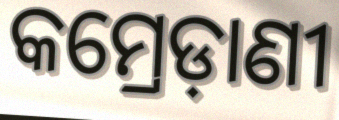
କମ୍ରେଡ଼ାଣୀ